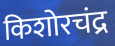
किशोरचंद्र